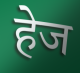
हेज